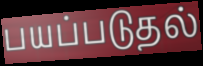
பயப்படுதல்